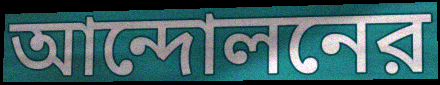
আন্দোলনের